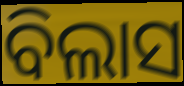
ବିଲାସ